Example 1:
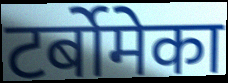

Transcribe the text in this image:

टर्बोमेका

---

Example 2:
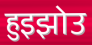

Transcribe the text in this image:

हुइझोउ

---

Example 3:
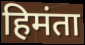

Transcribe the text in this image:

हिमंता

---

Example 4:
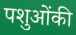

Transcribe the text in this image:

पशुओंकी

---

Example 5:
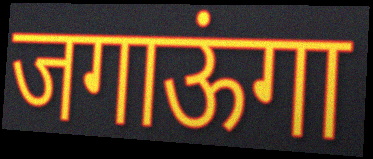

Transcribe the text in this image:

जगाऊंगा